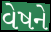
વેષને